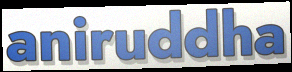
aniruddha